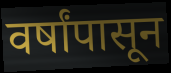
वर्षांपासून